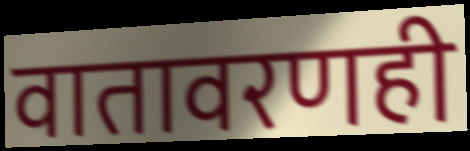
वातावरणही